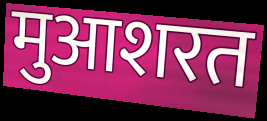
मुआशरत